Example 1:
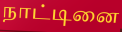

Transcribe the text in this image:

நாட்டினை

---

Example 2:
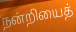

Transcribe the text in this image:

நன்றியைத்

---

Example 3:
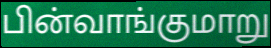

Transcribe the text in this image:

பின்வாங்குமாறு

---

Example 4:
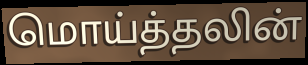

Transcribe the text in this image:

மொய்த்தலின்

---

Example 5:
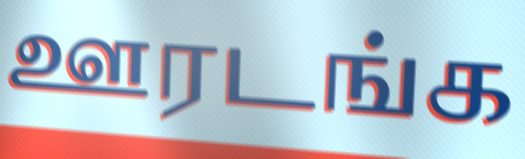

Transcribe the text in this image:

ஊரடங்க